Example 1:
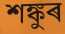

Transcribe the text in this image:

শঙ্কুৰ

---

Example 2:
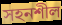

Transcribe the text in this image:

সহনশীল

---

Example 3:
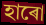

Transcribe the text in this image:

হাৰো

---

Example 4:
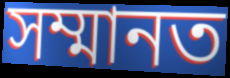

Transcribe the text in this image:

সম্মানত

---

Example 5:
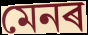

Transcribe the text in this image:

মেনৰ